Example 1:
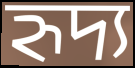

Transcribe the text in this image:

হৃদ্য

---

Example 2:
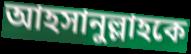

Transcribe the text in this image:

আহসানুল্লাহকে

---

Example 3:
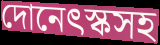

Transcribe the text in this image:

দোনেৎস্কসহ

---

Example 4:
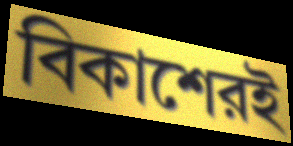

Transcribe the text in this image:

বিকাশেরই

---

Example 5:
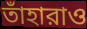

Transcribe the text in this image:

তাঁহারাও